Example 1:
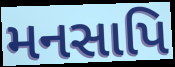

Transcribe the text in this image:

મનસાપિ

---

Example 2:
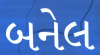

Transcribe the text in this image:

બનેલ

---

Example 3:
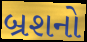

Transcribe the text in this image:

બ્રશનો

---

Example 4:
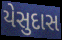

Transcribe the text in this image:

યેસુદાસ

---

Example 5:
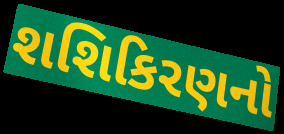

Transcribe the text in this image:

શશિકિરણનો